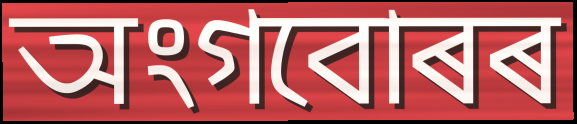
অংগবোৰৰ